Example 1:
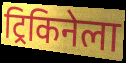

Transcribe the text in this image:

ट्रिकिनेला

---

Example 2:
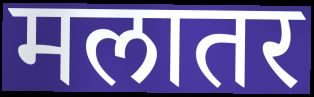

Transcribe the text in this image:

मलातर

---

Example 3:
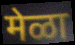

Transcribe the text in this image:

मेळा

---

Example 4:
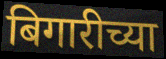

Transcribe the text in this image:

बिगारीच्या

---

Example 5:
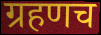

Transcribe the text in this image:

ग्रहणच